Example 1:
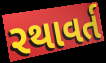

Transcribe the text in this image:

રથાવર્ત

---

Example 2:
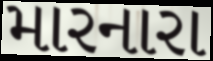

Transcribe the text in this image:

મારનારા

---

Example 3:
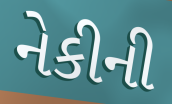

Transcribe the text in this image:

નેકીની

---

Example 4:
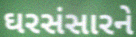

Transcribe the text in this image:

ઘરસંસારને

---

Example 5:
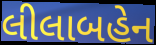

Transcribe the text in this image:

લીલાબહેન